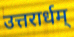
उत्तरार्धम्